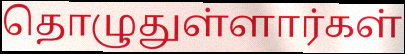
தொழுதுள்ளார்கள்